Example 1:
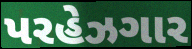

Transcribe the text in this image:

પરહેઝગાર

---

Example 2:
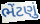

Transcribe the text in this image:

ભેંટણું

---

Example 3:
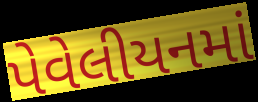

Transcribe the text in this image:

પેવેલીયનમાં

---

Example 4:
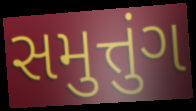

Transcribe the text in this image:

સમુત્તુંગ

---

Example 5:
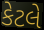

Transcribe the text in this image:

કેટલે